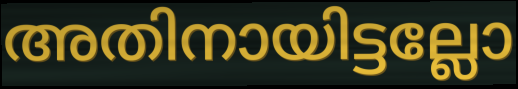
അതിനായിട്ടല്ലോ